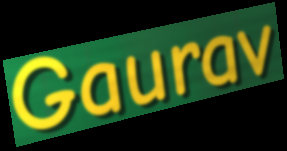
Gaurav